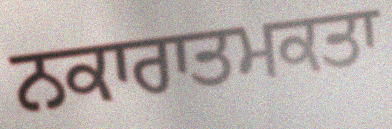
ਨਕਾਰਾਤਮਕਤਾ